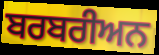
ਬਰਬਰੀਅਨ